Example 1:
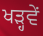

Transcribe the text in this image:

ਖੜ੍ਹਵੇਂ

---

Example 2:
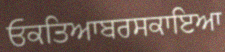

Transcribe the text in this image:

ਓਕਤਿਆਬਰਸਕਾਇਆ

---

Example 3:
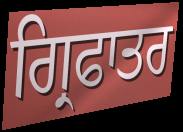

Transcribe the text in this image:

ਗ੍ਰਿਫਾਤਰ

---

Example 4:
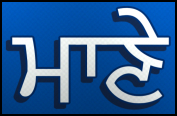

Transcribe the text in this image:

ਮਾਣੇ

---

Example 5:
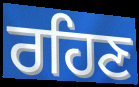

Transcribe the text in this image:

ਰਹਿਣ